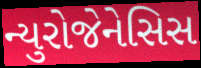
ન્યુરોજેનેસિસ